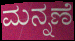
ಮನ್ನಣೆ